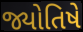
જ્યોતિષે